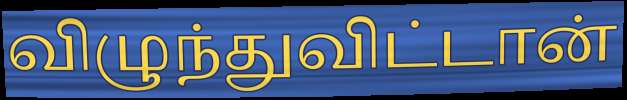
விழுந்துவிட்டான்